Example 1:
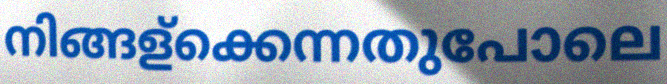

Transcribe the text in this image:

നിങ്ങള്ക്കെന്നതുപോലെ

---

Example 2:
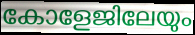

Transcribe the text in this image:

കോളേജിലേയും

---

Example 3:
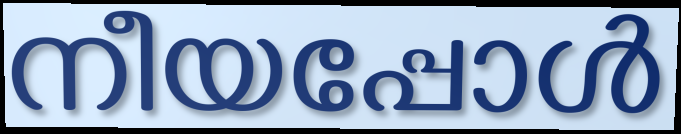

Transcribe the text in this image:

നീയപ്പോൾ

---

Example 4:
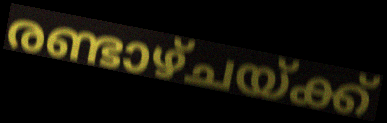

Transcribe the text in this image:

രണ്ടാഴ്ചയ്ക്ക്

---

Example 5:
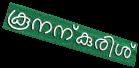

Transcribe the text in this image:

കൂനന്കുരിശ്